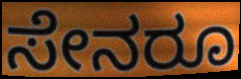
ಸೇನರೂ